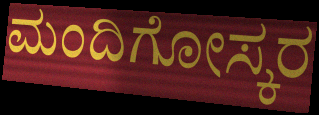
ಮಂದಿಗೋಸ್ಕರ